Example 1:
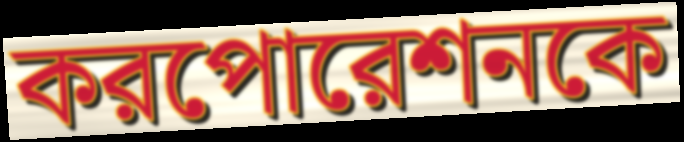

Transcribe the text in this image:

করপোরেশনকে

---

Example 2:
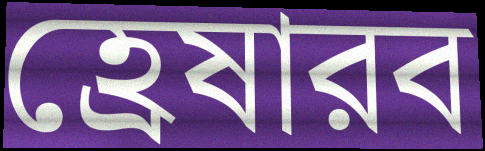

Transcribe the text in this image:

হ্রেষারব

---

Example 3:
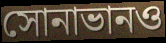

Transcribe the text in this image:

সোনাভানও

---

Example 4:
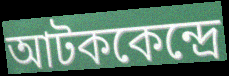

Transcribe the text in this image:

আটককেন্দ্রে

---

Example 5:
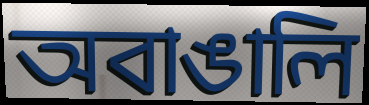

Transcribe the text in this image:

অবাঙালি